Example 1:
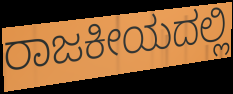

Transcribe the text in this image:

ರಾಜಕೀಯದಲ್ಲಿ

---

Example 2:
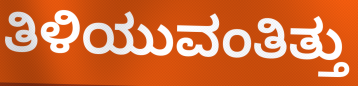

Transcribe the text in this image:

ತಿಳಿಯುವಂತಿತ್ತು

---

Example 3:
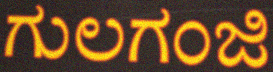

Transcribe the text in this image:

ಗುಲಗಂಜಿ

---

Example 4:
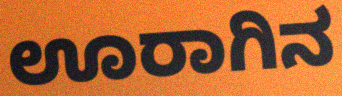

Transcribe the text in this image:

ಊರಾಗಿನ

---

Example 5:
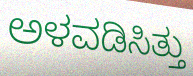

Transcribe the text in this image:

ಅಳವಡಿಸಿತ್ತು